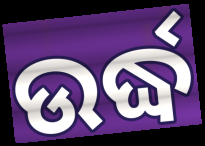
ଉର୍ଦ୍ଧ